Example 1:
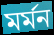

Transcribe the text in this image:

মর্মন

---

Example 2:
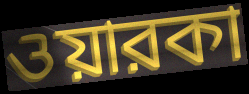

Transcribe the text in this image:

ওয়ারকা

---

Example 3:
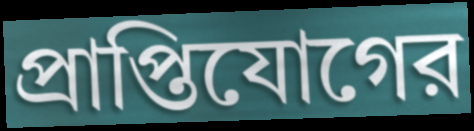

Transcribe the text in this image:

প্রাপ্তিযোগের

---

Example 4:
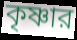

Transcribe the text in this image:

কৃষ্ণার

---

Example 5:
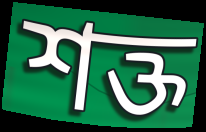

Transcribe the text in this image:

শক্ত